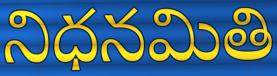
నిధనమితి